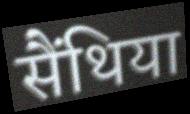
सैंथिया